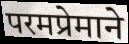
परमप्रेमाने